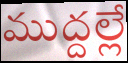
ముద్దల్లే